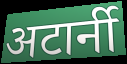
अटार्नी